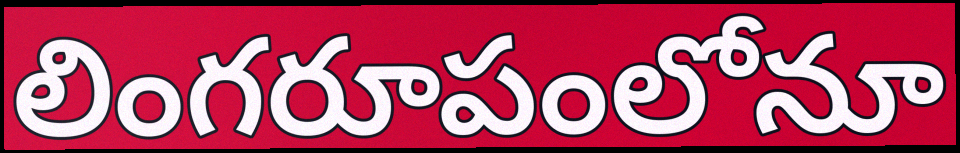
లింగరూపంలోనూ